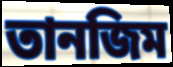
তানজিম